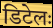
डिटेलः